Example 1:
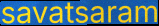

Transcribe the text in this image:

savatsaram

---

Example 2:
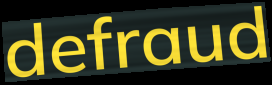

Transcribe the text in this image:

defraud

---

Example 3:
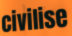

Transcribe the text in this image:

civilise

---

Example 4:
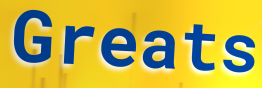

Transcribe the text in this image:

Greats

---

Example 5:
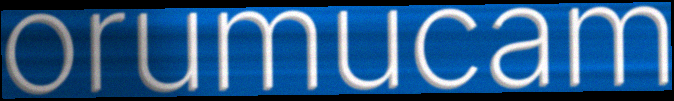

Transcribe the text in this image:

orumucam